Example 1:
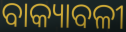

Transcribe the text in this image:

ବାକ୍ୟାବଳୀ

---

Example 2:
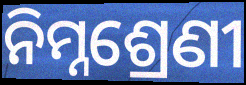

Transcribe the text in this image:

ନିମ୍ନଶ୍ରେଣୀ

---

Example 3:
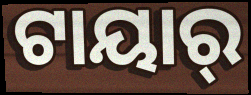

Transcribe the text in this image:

ଟାୟାର୍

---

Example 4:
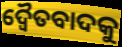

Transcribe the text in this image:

ଦ୍ୱୈତବାଦକୁ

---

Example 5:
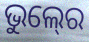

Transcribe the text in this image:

ଭୁଲ୍‍ରେ